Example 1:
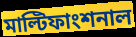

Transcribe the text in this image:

মাল্টিফাংশনাল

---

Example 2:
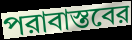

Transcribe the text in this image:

পরাবাস্তবের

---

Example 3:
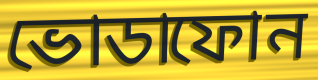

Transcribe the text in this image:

ভোডাফোন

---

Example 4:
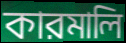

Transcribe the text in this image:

কারমালি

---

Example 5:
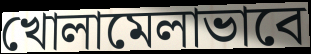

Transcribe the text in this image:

খোলামেলাভাবে